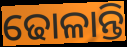
ଢୋଳାନ୍ତି